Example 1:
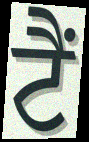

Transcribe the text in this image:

ਟੈੰ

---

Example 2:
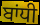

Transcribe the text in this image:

ਬਾਂਧੀ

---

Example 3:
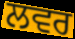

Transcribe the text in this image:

ਲਵਰ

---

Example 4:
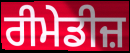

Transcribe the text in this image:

ਰੀਮੇਡੀਜ਼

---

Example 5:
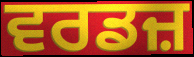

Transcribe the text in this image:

ਵਰਡਜ਼